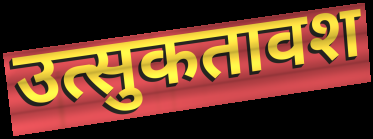
उत्सुकतावश